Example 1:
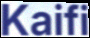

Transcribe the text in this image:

Kaifi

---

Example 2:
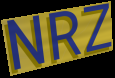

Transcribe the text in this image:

NRZ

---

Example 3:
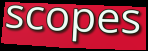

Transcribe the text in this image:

scopes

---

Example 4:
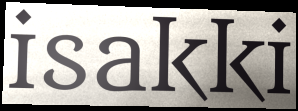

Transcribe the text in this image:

isakki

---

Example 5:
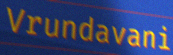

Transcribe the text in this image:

Vrundavani